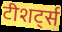
टीशर्ट्स